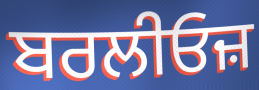
ਬਰਲੀਓਜ਼